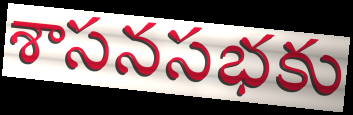
శాసనసభకు